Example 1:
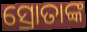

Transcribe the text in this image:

ସ୍ରୋତାଙ୍କ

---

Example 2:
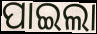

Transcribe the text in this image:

ପାଇଲା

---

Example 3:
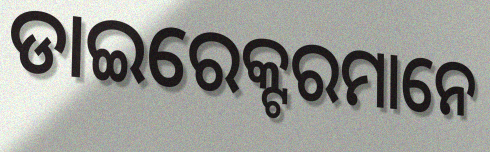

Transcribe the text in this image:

ଡାଇରେକ୍ଟରମାନେ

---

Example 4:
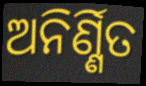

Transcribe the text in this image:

ଅନିର୍ଣ୍ଣିତ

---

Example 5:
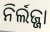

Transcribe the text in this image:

ନିର୍ଲଜ୍ଜା